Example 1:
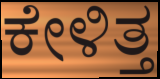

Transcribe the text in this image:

ಕೇಳಿತ್ತ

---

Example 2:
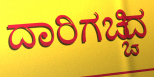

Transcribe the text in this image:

ದಾರಿಗಚ್ಚಿದ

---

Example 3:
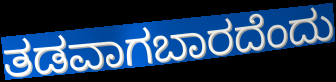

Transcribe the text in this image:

ತಡವಾಗಬಾರದೆಂದು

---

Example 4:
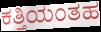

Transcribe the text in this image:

ಕತ್ತಿಯಂತಹ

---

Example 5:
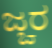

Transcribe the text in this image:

ಜ್ಚರ